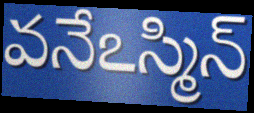
వనేఽస్మిన్